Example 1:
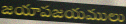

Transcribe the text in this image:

జయాపజయములు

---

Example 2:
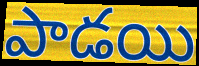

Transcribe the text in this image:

పాడయి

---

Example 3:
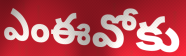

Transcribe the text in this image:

ఎంఈవోకు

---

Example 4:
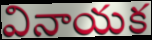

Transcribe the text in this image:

వినాయక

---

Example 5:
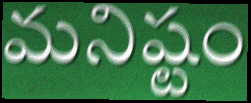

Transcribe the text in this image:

మనిష్టం